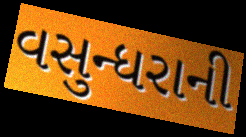
વસુન્ધરાની